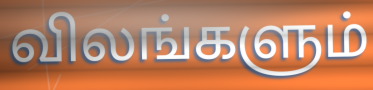
விலங்களும்